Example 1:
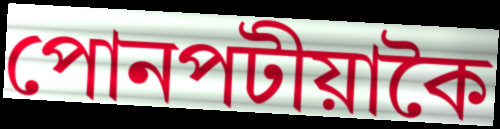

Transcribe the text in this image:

পোনপটীয়াকৈ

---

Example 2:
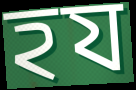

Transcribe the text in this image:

হয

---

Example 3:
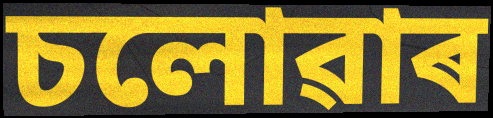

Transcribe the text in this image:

চলোৱাৰ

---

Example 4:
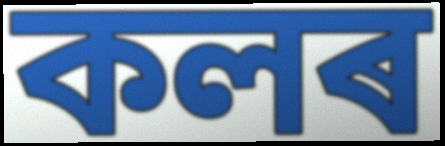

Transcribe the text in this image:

কলৰ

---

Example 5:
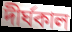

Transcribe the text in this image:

দীৰ্ঘকাল